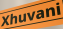
Xhuvani